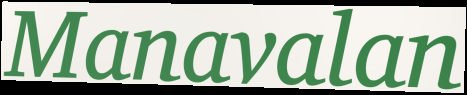
Manavalan